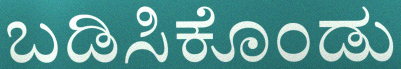
ಬಡಿಸಿಕೊಂಡು